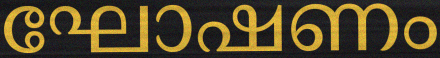
ഘോഷണം